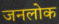
जनलोक